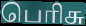
பெரிசு